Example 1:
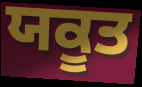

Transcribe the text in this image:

ਯਕੂਤ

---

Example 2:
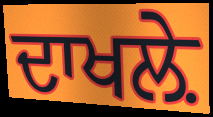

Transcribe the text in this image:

ਦਾਖਲ਼ੇ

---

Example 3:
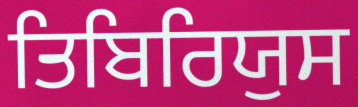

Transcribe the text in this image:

ਤਿਬਿਰਿਯੁਸ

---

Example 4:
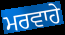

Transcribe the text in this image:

ਮਰਵਾਹੇ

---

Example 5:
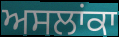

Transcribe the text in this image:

ਅਸਲਾਂਕਾ